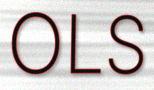
OLS